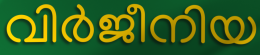
വിർജീനിയ